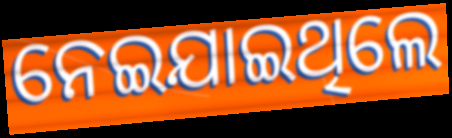
ନେଇଯାଇଥିଲେ